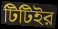
টিটিইর